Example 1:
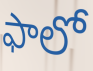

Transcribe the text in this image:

ఫాలో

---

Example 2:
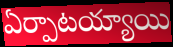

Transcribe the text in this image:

ఏర్పాటయ్యాయి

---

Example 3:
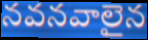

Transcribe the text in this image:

నవనవాలైన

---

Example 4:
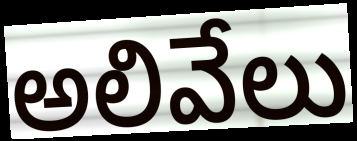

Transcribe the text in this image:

అలివేలు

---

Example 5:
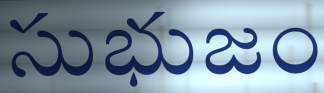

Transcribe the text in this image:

సుభుజం